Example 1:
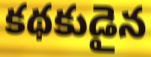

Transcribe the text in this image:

కథకుడైన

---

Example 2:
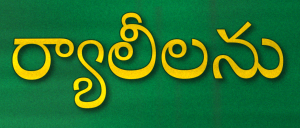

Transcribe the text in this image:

ర్యాలీలను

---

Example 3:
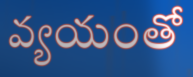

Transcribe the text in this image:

వ్యయంతో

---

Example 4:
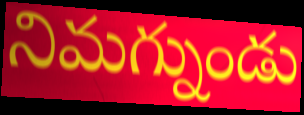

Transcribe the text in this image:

నిమగ్నుండు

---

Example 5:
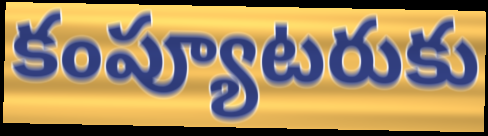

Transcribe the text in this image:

కంప్యూటరుకు